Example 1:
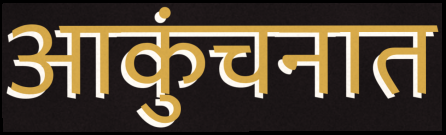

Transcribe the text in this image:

आकुंचनात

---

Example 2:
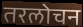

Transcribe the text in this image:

तरलोचन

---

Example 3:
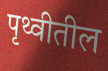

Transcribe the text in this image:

पृथ्वीतील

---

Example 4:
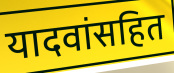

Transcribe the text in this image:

यादवांसहित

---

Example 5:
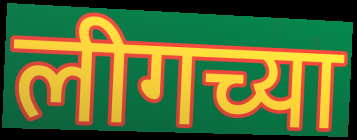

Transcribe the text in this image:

लीगच्या